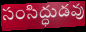
సంసిద్ధుడవు